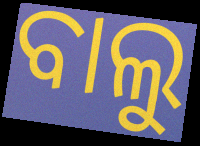
ବାଲୁ